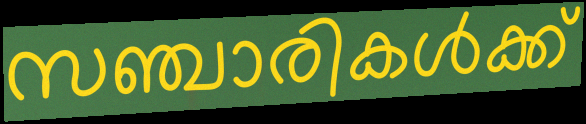
സഞ്ചാരികൾക്ക്